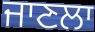
ਜਾਣਲਾ